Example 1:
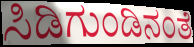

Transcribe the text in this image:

ಸಿಡಿಗುಂಡಿನಂತೆ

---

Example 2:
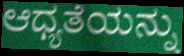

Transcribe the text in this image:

ಆಧ್ಯತೆಯನ್ನು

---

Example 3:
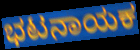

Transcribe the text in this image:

ಭಟನಾಯಕ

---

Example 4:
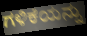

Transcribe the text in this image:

ಗಳಿಕೆಯನ್ನು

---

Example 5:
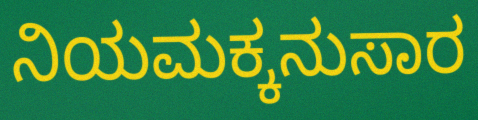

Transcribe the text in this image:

ನಿಯಮಕ್ಕನುಸಾರ